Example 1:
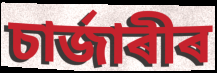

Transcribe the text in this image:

চাৰ্জাৰীৰ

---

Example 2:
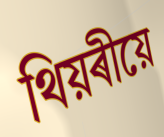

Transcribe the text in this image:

থিয়ৰীয়ে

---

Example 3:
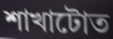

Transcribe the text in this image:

শাখাটোত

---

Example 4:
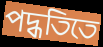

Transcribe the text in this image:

পদ্ধতিতে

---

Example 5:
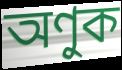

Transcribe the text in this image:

অণুক